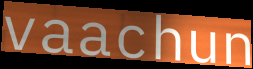
vaachun